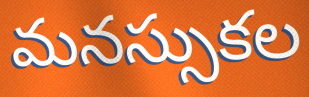
మనస్సుకల